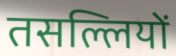
तसल्लियों